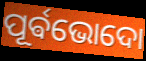
ପୂର୍ଵଭୋଦୋ